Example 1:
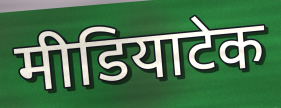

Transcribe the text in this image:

मीडियाटेक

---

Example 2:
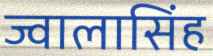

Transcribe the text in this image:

ज्वालासिंह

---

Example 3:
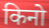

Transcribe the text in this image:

किनो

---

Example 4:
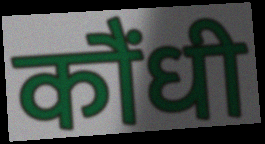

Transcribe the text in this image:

कौंधी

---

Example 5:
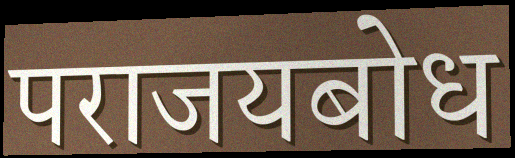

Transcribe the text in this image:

पराजयबोध